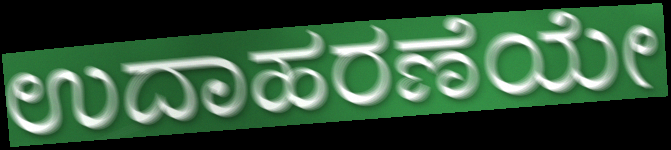
ಉದಾಹರಣೆಯೇ